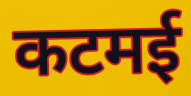
कटमई